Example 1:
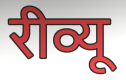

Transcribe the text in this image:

रीव्यू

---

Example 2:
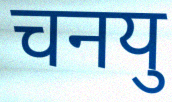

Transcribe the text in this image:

चनयु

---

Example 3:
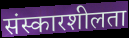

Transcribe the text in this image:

संस्कारशीलता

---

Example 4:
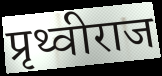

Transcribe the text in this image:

प्रृथ्वीराज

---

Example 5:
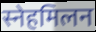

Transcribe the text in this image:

स्नेहमिलन